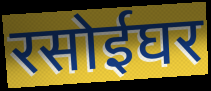
रसोईघर